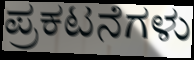
ಪ್ರಕಟನೆಗಳು